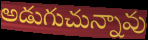
అడుగుచున్నావు